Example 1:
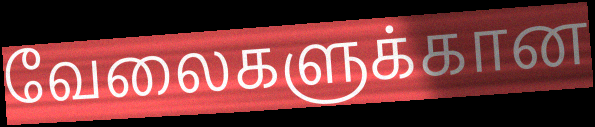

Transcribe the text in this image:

வேலைகளுக்கான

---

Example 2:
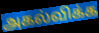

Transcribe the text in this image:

அகல்விக்க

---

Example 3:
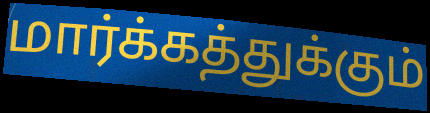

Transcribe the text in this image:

மார்க்கத்துக்கும்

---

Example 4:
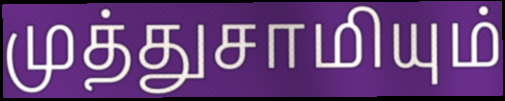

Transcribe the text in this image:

முத்துசாமியும்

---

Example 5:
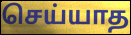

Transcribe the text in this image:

செய்யாத